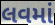
લવમાં